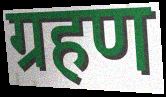
ग्रहण